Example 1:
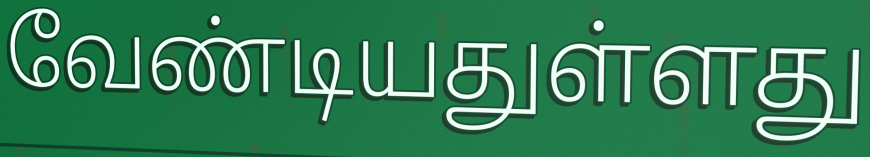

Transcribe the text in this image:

வேண்டியதுள்ளது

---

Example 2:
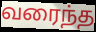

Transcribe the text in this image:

வரைந்த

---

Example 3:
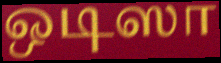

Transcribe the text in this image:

ஒடிஸா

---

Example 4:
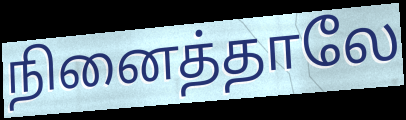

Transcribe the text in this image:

நினைத்தாலே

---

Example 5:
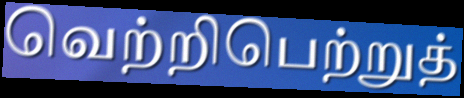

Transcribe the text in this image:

வெற்றிபெற்றுத்